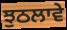
ਝੁਠਲਾਵੇ